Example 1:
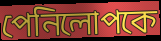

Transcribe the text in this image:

পেনিলোপকে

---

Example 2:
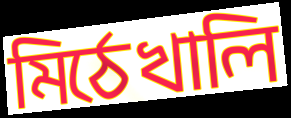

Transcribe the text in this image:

মিঠেখালি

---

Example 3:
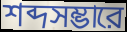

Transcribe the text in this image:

শব্দসম্ভারে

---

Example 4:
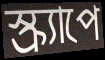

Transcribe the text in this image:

স্ক্র্যাপে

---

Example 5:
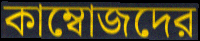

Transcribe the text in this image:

কাম্বোজদের